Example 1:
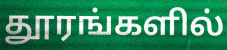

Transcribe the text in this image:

தூரங்களில்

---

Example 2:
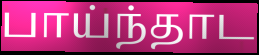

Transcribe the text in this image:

பாய்ந்தாட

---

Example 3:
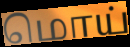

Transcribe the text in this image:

மொய்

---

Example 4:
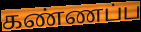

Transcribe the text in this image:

கண்ணப்ப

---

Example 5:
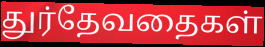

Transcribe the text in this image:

துர்தேவதைகள்